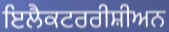
ਇਲੈਕਟਰਰੀਸ਼ੀਅਨ